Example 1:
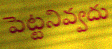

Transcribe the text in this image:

పెట్టనివ్వదు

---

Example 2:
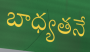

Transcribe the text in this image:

బాధ్యతనే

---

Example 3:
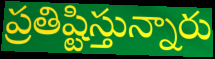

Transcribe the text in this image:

ప్రతిష్టిస్తున్నారు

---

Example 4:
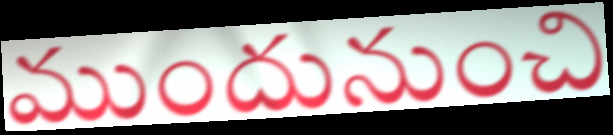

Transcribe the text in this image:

ముందునుంచి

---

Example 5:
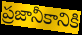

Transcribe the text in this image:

ప్రజానీకానికి